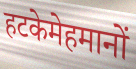
हटकेमेहमानों